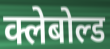
क्लेबोल्ड